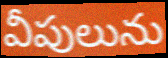
వీపులును